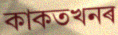
কাকতখনৰ